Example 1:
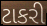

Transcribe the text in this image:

ટાકરી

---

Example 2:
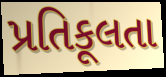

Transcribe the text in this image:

પ્રતિકૂલતા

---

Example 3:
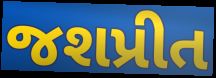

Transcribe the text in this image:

જશપ્રીત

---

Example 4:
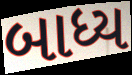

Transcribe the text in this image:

બાધ્ય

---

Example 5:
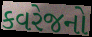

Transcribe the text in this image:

કવરેજનો